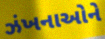
ઝંખનાઓને